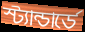
স্ট্যান্ডার্ডে